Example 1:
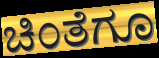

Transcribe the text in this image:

ಚಿಂತೆಗೂ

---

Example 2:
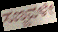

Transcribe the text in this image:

ಸಣ್ಣವಳೇ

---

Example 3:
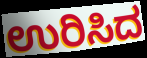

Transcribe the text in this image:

ಉರಿಸಿದ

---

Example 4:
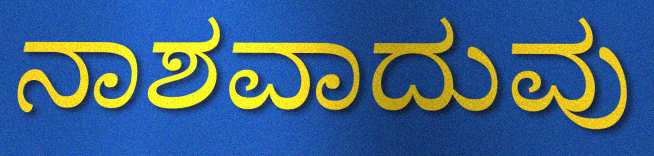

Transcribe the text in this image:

ನಾಶವಾದುವು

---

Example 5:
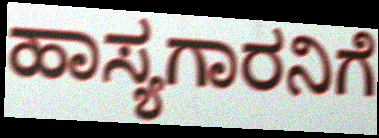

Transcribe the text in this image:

ಹಾಸ್ಯಗಾರನಿಗೆ